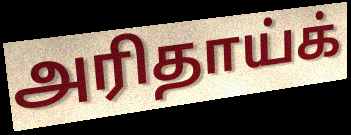
அரிதாய்க்